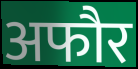
अफौर